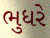
ભુધરે